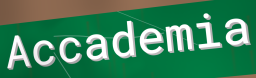
Accademia